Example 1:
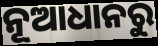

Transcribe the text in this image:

ନୂଆଧାନରୁ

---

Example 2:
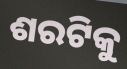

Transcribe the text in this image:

ଶରଟିକୁ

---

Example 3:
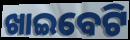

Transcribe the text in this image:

ଖାଇବେଟି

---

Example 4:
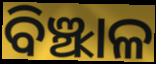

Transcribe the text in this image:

ବିଞ୍ଝାଳ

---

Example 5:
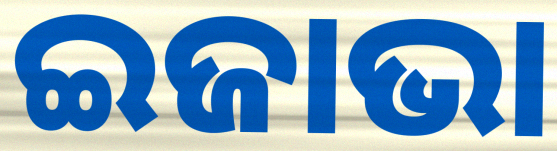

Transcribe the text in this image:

ଇଜାଭା